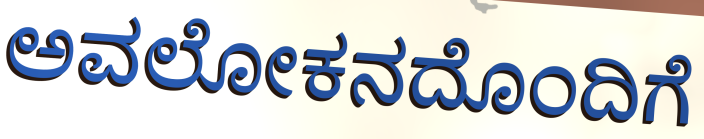
ಅವಲೋಕನದೊಂದಿಗೆ